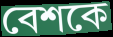
বেশকে